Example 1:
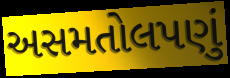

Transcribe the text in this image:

અસમતોલપણું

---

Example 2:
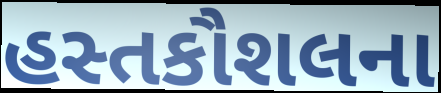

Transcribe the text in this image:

હસ્તકૌશલના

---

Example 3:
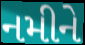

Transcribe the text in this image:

નમીને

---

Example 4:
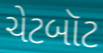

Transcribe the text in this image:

ચેટબૉટ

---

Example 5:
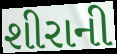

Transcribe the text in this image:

શીરાની